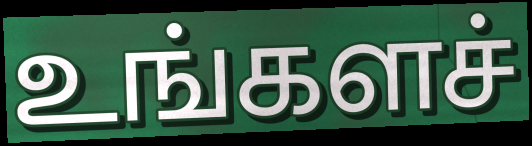
உங்களச்